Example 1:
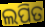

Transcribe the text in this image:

ଲପିତ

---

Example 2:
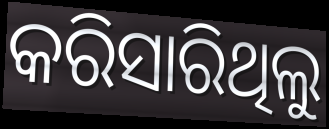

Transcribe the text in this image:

କରିସାରିଥିଲୁ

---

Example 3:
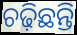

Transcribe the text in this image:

ଚଢ଼ିଛନ୍ତି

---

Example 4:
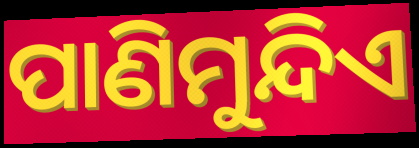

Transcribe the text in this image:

ପାଣିମୁନ୍ଦିଏ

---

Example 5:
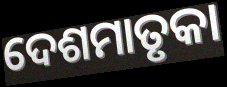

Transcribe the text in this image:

ଦେଶମାତୃକା